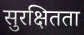
सुरक्षितता